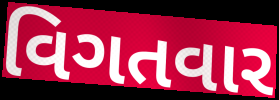
વિગતવાર